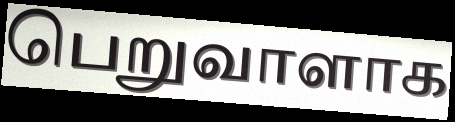
பெறுவாளாக